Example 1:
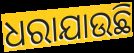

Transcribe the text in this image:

ଧରାଯାଉଛି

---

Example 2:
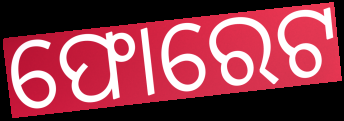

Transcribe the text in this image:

ଫୋରେଟ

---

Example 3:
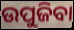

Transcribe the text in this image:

ଉପୁଜିବା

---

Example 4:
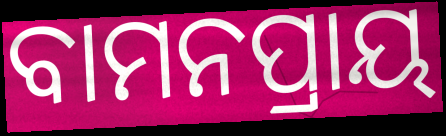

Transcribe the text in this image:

ବାମନପ୍ରାୟ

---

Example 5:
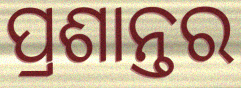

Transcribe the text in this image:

ପ୍ରଶାନ୍ତର